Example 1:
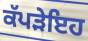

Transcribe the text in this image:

ਕੱਪੜੇਇਹ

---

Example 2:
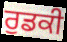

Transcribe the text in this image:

ਰੁਡਕੀ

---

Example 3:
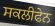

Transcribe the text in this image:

ਸਕਲੀਫੇਨ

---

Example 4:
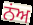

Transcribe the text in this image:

ਨਂਅ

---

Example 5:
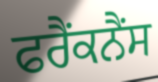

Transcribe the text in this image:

ਫਰੈਂਕਨੈਂਸ